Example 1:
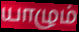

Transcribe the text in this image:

யாழும்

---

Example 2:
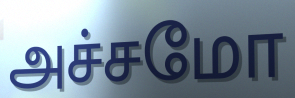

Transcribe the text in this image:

அச்சமோ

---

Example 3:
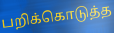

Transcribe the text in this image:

பறிக்கொடுத்த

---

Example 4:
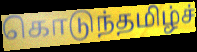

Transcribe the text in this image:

கொடுந்தமிழ்ச்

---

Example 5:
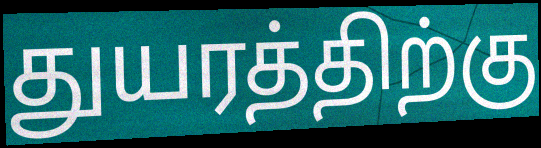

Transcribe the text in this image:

துயரத்திற்கு